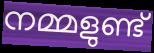
നമ്മളുണ്ട്